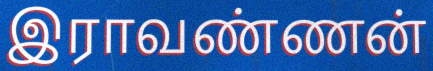
இராவண்ணன்